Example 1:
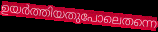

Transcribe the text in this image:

ഉയർത്തിയതുപോലെതന്നെ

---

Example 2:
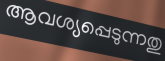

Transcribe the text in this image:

ആവശ്യപ്പെടുന്നതു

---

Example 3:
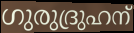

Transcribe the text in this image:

ഗുരുദ്രുഹന്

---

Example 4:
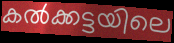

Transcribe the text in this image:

കൽക്കട്ടയിലെ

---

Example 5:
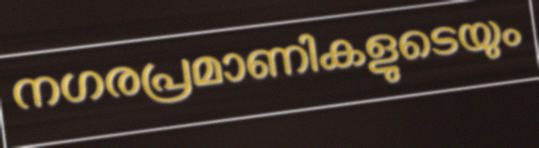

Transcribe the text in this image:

നഗരപ്രമാണികളുടെയും